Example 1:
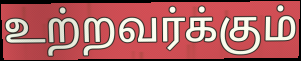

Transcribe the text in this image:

உற்றவர்க்கும்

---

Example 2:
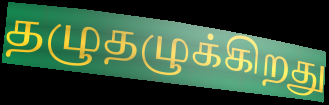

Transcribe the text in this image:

தழுதழுக்கிறது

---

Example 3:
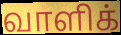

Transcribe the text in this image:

வாளிக்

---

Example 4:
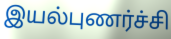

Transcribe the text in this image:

இயல்புணர்ச்சி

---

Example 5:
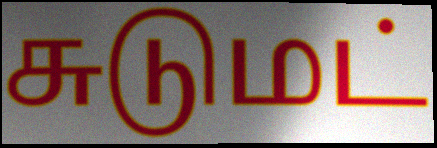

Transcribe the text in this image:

சுடுமட்